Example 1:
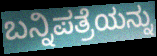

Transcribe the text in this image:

ಬನ್ನಿಪತ್ರೆಯನ್ನು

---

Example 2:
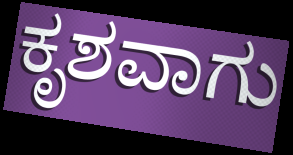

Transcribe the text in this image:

ಕೃಶವಾಗು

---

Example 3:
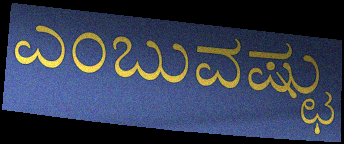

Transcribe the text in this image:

ಎಂಬುವಷ್ಟು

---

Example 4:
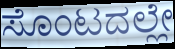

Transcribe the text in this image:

ಸೊಂಟದಲ್ಲೇ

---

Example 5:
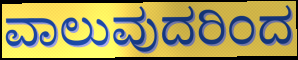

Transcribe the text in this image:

ವಾಲುವುದರಿಂದ